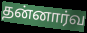
தன்னார்வ